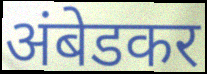
अंबेडकर